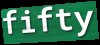
fifty